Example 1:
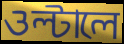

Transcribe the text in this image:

ওল্টালে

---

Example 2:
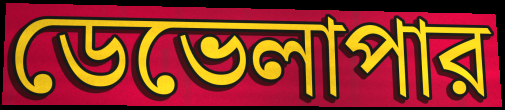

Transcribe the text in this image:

ডেভেলাপার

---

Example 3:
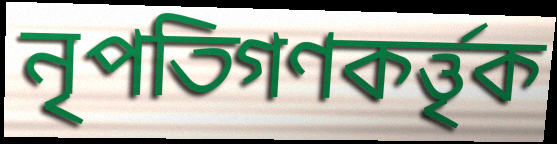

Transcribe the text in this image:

নৃপতিগণকর্ত্তৃক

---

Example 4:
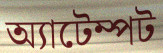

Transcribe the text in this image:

অ্যাটেম্পট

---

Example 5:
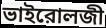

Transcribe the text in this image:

ভাইরোলজী